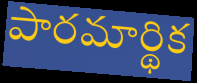
పారమార్థిక